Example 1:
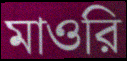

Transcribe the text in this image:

মাওরি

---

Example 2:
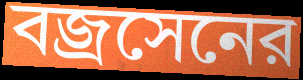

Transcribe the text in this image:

বজ্রসেনের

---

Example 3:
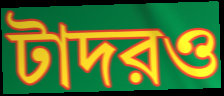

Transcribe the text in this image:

টাদরও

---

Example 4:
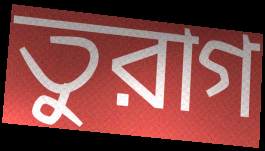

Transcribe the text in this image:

তুরাগ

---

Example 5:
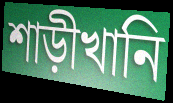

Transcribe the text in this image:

শাড়ীখানি